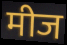
मीज